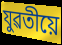
যুৱতীয়ে